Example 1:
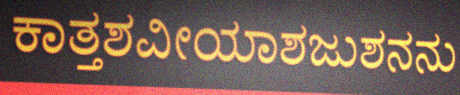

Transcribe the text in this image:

ಕಾತ್ತಶವೀಯಾಶಜುಶನನು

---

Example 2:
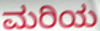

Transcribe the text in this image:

ಮರಿಯ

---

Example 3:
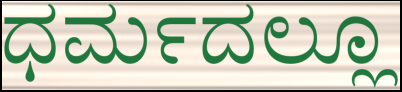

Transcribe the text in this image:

ಧರ್ಮದಲ್ಲೂ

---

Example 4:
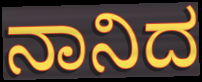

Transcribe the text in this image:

ನಾನಿದ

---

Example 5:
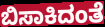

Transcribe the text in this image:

ಬಿಸಾಕಿದಂತೆ